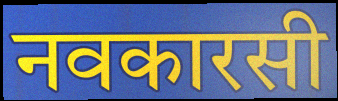
नवकारसी